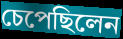
চেপেছিলেন